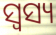
ସ୍ଵସ୍ୟ